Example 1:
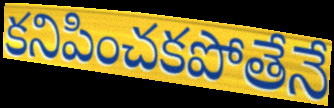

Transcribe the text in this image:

కనిపించకపోతేనే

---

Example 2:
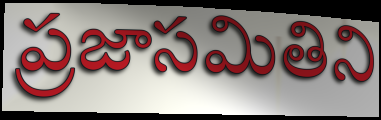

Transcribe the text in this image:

ప్రజాసమితిని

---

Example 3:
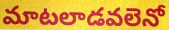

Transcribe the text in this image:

మాటలాడవలెనో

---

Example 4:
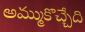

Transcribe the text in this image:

అమ్ముకొచ్చేది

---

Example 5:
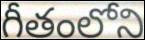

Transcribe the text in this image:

గీతంలోని